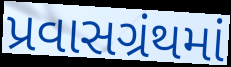
પ્રવાસગ્રંથમાં